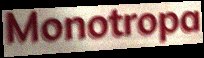
Monotropa